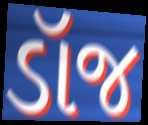
ડૉજ